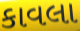
કાવલા